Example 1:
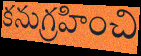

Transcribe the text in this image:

కనుగ్రహించి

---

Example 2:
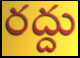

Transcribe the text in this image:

రద్దు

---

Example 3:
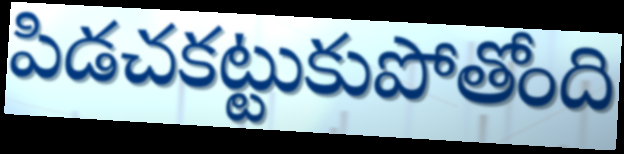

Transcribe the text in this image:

పిడచకట్టుకుపోతోంది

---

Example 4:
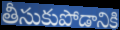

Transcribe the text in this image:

తీసుకుపోడానికి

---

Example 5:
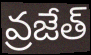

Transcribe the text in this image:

వ్రజేత్